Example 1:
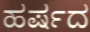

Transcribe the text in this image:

ಹರ್ಷದ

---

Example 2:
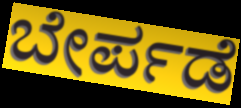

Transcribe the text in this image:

ಬೇರ್ಪಡೆ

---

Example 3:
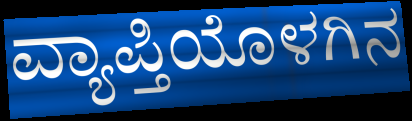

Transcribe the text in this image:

ವ್ಯಾಪ್ತಿಯೊಳಗಿನ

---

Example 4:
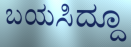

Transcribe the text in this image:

ಬಯಸಿದ್ದೂ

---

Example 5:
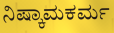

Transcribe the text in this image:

ನಿಷ್ಕಾಮಕರ್ಮ